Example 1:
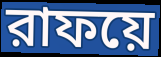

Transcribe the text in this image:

রাফয়ে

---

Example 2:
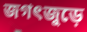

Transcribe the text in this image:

জগৎজুড়ে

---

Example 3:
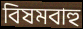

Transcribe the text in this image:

বিষমবাহু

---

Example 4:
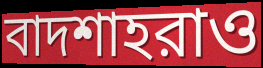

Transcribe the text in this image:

বাদশাহরাও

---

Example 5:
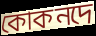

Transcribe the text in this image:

কোকনদে